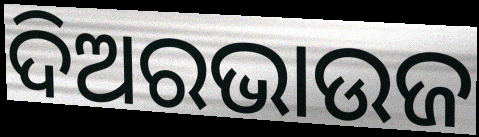
ଦିଅରଭାଉଜ